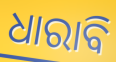
ଧାରାବି